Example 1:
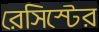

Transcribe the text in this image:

রেসিস্টের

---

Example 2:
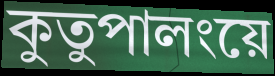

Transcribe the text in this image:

কুতুপালংয়ে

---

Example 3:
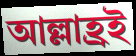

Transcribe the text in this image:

আল্লাহ্রই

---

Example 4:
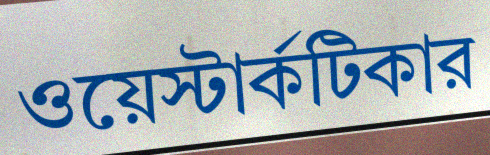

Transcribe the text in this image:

ওয়েস্টার্কটিকার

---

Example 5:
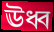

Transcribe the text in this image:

ঊধ্ব